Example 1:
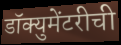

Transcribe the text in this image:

डॉक्युमेंटरीची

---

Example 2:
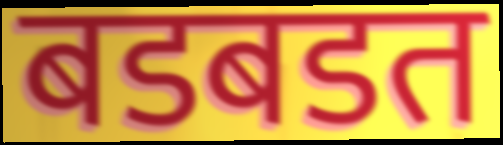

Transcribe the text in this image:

बडबडत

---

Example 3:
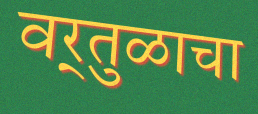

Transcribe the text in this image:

वर्तुळाचा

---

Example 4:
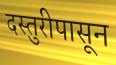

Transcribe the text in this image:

दस्तुरीपासून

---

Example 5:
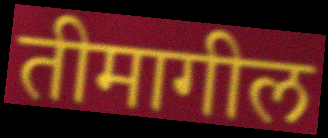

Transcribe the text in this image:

तीमागील